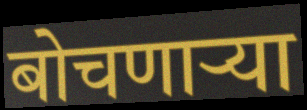
बोचणाऱ्या